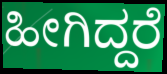
ಹೀಗಿದ್ದರೆ